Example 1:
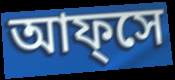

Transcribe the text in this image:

আফ্সে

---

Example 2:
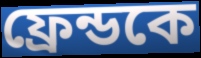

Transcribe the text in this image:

ফ্রেন্ডকে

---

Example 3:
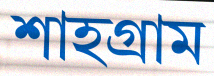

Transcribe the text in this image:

শাহগ্রাম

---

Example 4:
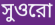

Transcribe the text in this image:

সুওরো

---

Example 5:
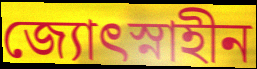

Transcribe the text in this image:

জ্যোৎস্নাহীন